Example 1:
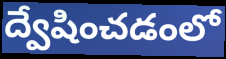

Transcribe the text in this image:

ద్వేషించడంలో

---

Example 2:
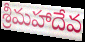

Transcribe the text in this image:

శ్రీమహాదేవ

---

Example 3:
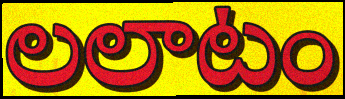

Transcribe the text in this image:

లలాటం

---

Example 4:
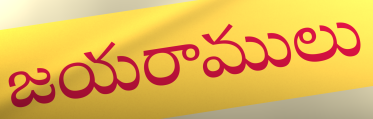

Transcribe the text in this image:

జయరాములు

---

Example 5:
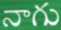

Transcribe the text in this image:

నాగు